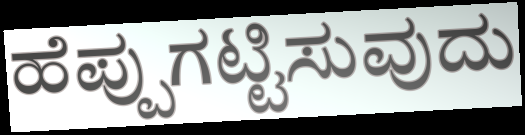
ಹೆಪ್ಪುಗಟ್ಟಿಸುವುದು